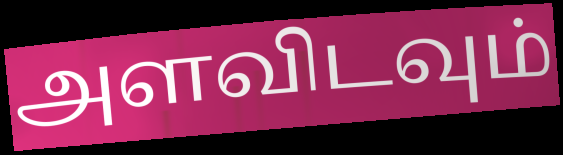
அளவிடவும்